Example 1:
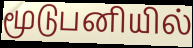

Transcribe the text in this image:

மூடுபனியில்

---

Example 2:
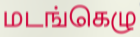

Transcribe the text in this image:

மடங்கெழு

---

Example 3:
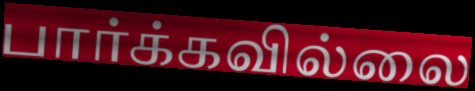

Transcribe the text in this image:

பார்க்கவில்லை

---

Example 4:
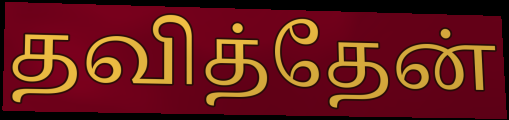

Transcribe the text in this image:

தவித்தேன்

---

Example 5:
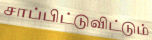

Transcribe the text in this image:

சாப்பிட்டுவிட்டும்